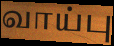
வாய்பு